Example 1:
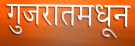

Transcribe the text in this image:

गुजरातमधून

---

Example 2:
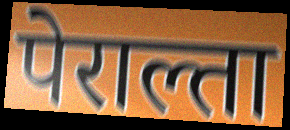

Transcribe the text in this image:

पेराल्ता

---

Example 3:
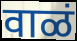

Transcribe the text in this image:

वाळं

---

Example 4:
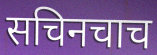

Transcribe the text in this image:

सचिनचाच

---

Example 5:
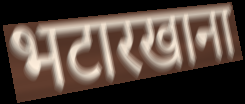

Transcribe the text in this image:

भटारखाना